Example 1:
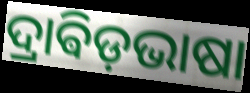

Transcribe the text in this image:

ଦ୍ରାଵିଡ଼ଭାଷା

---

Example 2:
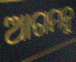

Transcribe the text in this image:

ଆଗମନୁ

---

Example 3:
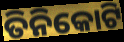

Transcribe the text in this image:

ତିନିକୋଟି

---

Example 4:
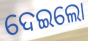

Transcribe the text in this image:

ଦେଇଲୋ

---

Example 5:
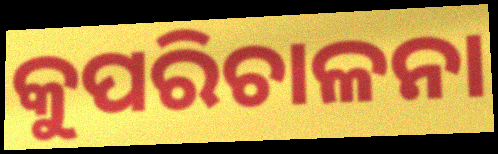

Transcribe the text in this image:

କୁପରିଚାଳନା